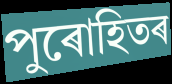
পুৰোহিতৰ